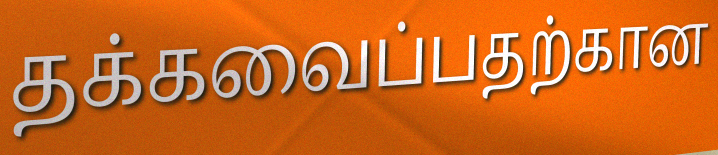
தக்கவைப்பதற்கான